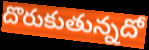
దొరుకుతున్నదో